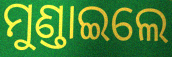
ମୁଣ୍ଡାଇଲେ